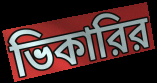
ভিকারির